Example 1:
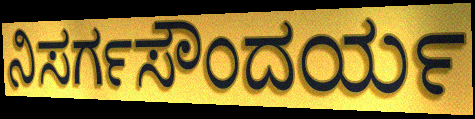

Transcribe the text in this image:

ನಿಸರ್ಗಸೌಂದರ್ಯ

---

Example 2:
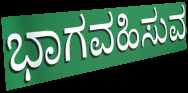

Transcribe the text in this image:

ಭಾಗವಹಿಸುವ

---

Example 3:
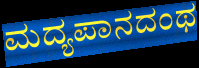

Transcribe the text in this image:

ಮದ್ಯಪಾನದಂಥ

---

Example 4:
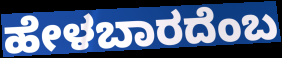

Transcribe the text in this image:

ಹೇಳಬಾರದೆಂಬ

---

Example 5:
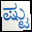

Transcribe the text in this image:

ಷ್ಟು